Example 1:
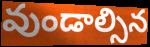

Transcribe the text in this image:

వుండాల్సిన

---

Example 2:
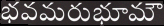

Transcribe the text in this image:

భవమరుభూమౌ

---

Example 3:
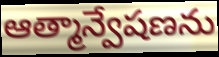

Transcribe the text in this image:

ఆత్మాన్వేషణను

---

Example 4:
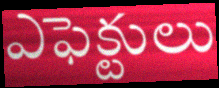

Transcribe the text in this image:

ఎఫెక్టులు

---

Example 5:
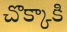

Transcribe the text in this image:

చొక్కాకి